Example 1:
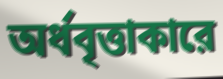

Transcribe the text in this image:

অর্ধবৃত্তাকারে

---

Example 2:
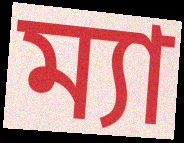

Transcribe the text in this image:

ম্যা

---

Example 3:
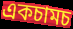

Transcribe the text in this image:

একচামচ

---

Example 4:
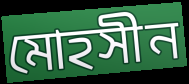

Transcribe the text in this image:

মোহসীন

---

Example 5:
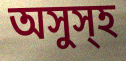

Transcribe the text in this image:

অসুস্হ